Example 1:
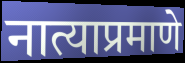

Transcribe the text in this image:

नात्याप्रमाणे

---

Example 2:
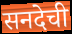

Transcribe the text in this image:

सनदेची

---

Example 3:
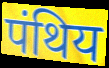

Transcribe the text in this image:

पंथिय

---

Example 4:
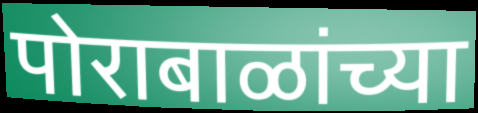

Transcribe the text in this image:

पोराबाळांच्या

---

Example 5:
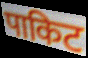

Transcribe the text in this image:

पाकिट